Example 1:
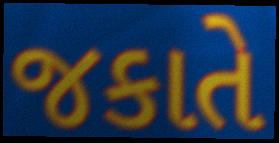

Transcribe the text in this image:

જકાતે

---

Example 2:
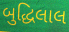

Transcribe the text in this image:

બુદ્ધિલાલ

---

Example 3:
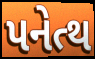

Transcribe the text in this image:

પનેત્થ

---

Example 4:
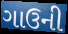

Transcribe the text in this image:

ગાઉની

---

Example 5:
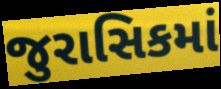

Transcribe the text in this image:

જુરાસિકમાં